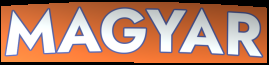
MAGYAR